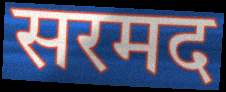
सरमद